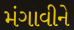
મંગાવીને